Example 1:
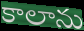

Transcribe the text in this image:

కాలాను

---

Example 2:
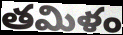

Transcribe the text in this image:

తమిళం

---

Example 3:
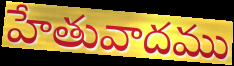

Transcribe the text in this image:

హేతువాదము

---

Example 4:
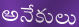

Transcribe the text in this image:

అనేకులు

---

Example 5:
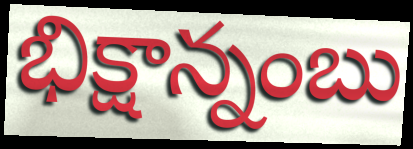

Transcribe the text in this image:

భిక్షాన్నంబు